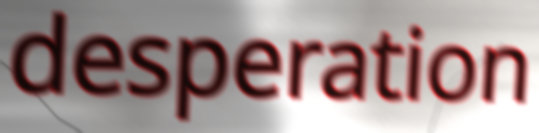
desperation